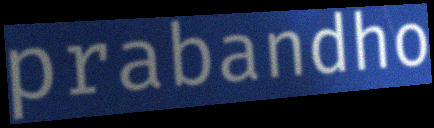
prabandho